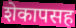
शेकापसह